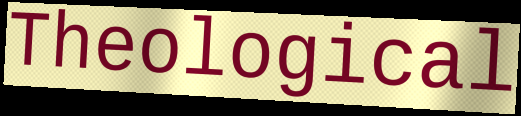
Theological